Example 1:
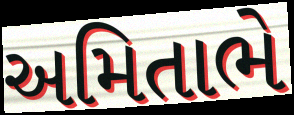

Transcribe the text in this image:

અમિતાભે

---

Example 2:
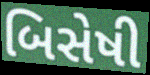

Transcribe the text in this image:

બિસેષી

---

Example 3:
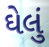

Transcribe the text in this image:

ઘેલું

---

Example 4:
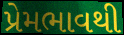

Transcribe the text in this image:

પ્રેમભાવથી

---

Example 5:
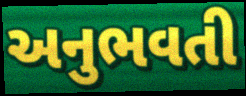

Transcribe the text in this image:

અનુભવતી